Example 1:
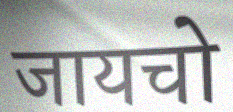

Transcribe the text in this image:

जायचो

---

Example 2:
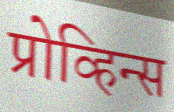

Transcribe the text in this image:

प्रोव्हिन्स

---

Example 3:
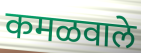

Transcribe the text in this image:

कमळवाले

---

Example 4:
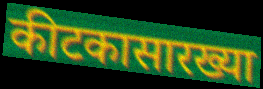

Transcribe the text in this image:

कीटकासारख्या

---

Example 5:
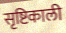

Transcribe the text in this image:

सृष्टिकाली